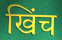
खिंच